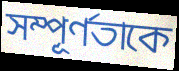
সম্পূর্ণতাকে